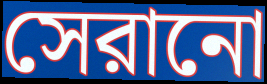
সেরানো